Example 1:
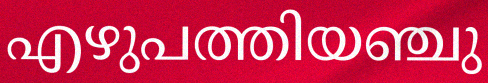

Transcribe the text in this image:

എഴുപത്തിയഞ്ചു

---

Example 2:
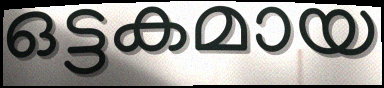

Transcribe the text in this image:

ഒട്ടകമായ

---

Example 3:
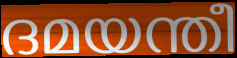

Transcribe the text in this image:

ദമയന്തീ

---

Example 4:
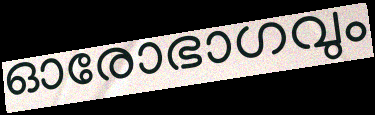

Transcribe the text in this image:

ഓരോഭാഗവും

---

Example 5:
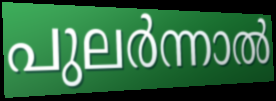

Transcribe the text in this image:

പുലർന്നാൽ